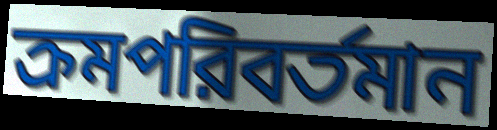
ক্রমপরিবর্তমান